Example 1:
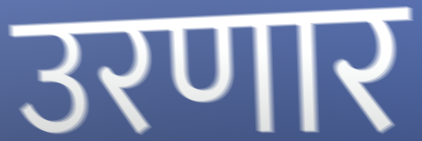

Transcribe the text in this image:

उरणार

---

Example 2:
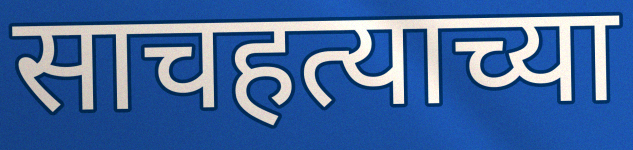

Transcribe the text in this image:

साचहत्याच्या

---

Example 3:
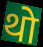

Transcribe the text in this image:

थो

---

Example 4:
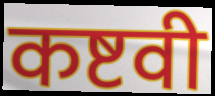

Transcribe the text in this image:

कष्टवी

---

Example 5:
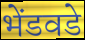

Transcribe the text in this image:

भेंडवडे